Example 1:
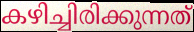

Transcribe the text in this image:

കഴിച്ചിരിക്കുന്നത്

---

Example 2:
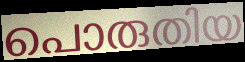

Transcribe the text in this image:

പൊരുതിയ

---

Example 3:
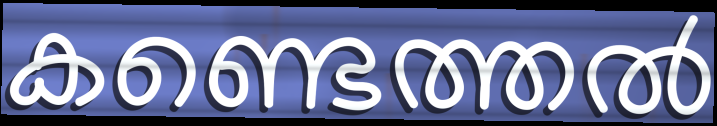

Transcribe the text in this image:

കണ്ടെത്തൽ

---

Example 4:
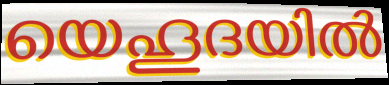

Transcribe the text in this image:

യെഹൂദയിൽ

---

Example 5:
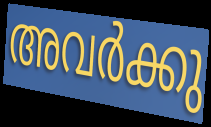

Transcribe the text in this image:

അവർക്കു